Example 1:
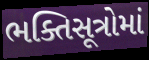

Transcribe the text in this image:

ભક્તિસૂત્રોમાં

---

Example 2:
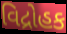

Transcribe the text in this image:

વિદ્રોહક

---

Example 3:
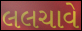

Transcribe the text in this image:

લલચાવે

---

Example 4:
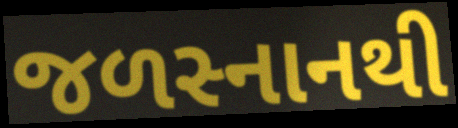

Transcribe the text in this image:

જળસ્નાનથી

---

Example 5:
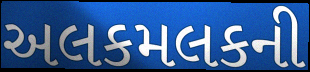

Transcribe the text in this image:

અલકમલકની